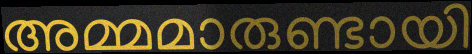
അമ്മമാരുണ്ടായി